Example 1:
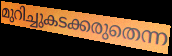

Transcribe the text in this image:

മുറിച്ചുകടക്കരുതെന്ന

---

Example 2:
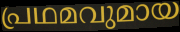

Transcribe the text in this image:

പ്രഥമവുമായ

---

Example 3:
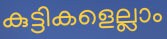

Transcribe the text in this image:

കുട്ടികളെല്ലാം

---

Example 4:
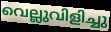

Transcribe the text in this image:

വെല്ലുവിളിച്ചു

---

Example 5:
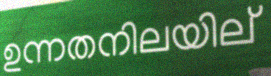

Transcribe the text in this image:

ഉന്നതനിലയില്